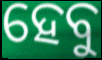
ହେବୁ